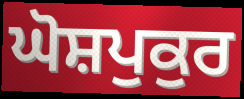
ਘੋਸ਼ਪੁਕੁਰ